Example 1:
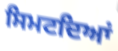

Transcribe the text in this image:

ਸਿਮਟਦਿਆਂ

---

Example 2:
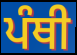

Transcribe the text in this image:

ਪੰਥੀ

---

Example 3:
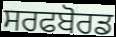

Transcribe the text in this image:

ਸਰਫਬੋਰਡ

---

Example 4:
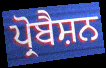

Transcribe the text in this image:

ਪ੍ਰੋਬੈਸ਼ਨ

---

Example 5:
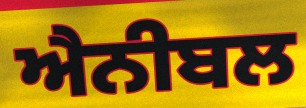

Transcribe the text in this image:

ਐਨੀਬਲ